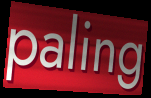
paling